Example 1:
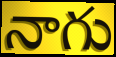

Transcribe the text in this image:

నాగు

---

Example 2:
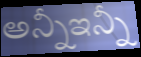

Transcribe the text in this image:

అన్నీఇన్నీ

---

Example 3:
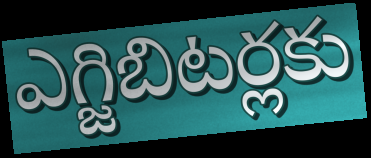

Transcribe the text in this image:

ఎగ్జిబిటర్లకు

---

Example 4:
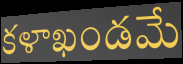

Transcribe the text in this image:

కళాఖండమే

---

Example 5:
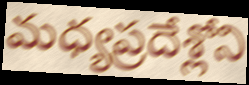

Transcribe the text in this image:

మధ్యప్రదేశ్లోని